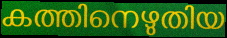
കത്തിനെഴുതിയ